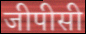
जीपीसी